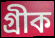
গ্ৰীক